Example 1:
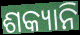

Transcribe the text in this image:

ଶକ୍ୟାନି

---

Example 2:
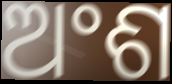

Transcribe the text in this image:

ଅଂଶ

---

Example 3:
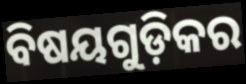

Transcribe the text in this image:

ବିଷୟଗୁଡ଼ିକର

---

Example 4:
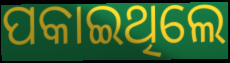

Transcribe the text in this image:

ପକାଇଥିଲେ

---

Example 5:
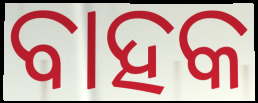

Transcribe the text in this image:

ବାହକ